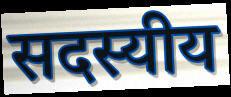
सदस्‍यीय